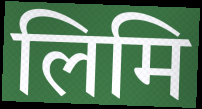
लिमि